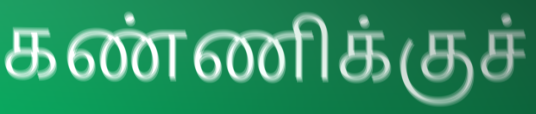
கண்ணிக்குச்